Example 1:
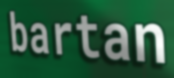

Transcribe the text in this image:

bartan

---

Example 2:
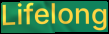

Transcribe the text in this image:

Lifelong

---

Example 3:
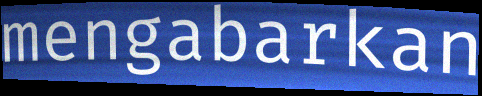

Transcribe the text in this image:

mengabarkan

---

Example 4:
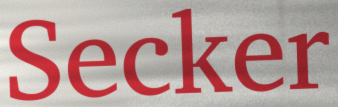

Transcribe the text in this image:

Secker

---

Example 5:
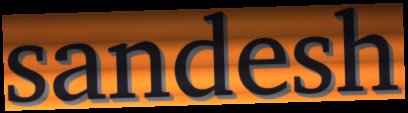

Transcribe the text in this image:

sandesh